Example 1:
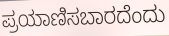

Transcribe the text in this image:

ಪ್ರಯಾಣಿಸಬಾರದೆಂದು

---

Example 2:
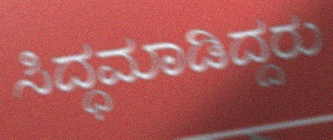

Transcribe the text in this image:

ಸಿದ್ಧಮಾಡಿದ್ದರು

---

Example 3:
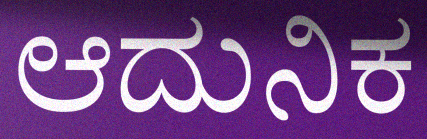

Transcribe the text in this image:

ಆದುನಿಕ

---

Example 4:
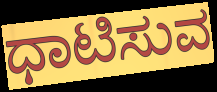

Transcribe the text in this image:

ಧಾಟಿಸುವ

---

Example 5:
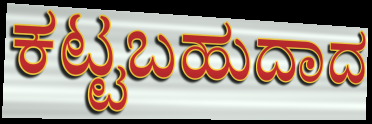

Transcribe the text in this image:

ಕಟ್ಟಬಹುದಾದ